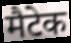
मैटेक